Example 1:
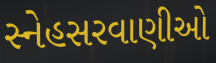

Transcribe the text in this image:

સ્નેહસરવાણીઓ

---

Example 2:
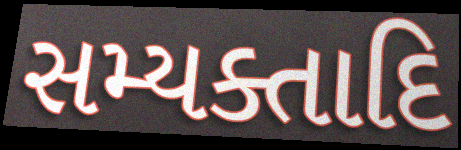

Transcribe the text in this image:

સમ્યક્તાદિ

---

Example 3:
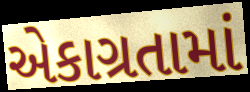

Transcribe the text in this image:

એકાગ્રતામાં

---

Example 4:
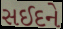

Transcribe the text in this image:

સઈદને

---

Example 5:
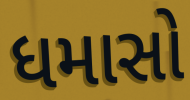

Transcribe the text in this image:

ધમાસો